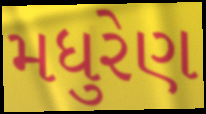
મધુરેણ